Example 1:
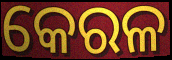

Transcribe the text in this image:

କେରଳ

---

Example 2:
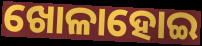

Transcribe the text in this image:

ଖୋଳାହୋଇ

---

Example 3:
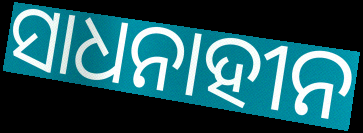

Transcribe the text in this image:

ସାଧନାହୀନ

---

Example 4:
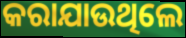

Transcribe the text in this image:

କରାଯାଉଥିଲେ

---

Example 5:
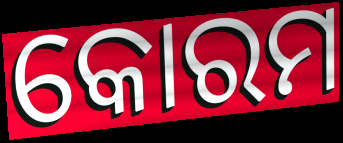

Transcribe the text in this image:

କୋରମ